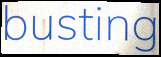
busting